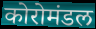
कोरोमंडल